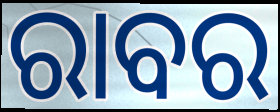
ରାବର